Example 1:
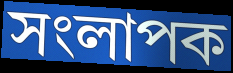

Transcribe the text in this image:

সংলাপক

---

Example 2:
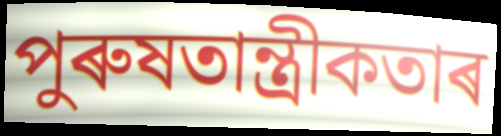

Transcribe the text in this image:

পুৰুষতান্ত্ৰীকতাৰ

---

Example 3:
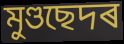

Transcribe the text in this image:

মুণ্ডছেদৰ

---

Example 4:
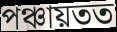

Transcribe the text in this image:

পঞ্চায়তত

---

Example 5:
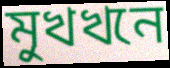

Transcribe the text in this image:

মুখখনে